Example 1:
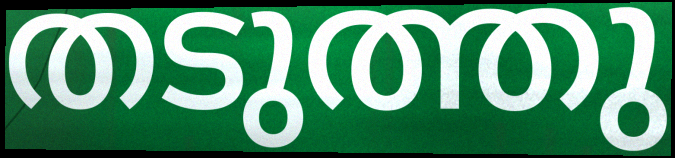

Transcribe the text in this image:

തടുത്തു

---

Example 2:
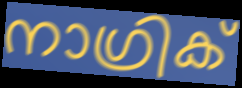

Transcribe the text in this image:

നാഗ്രിക്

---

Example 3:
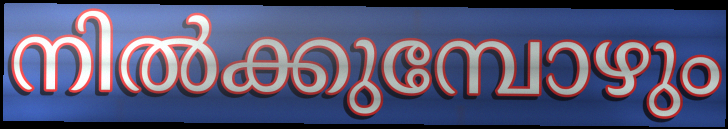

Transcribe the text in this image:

നിൽക്കുമ്പോഴും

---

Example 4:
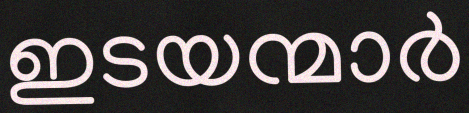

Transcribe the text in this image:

ഇടയന്മാർ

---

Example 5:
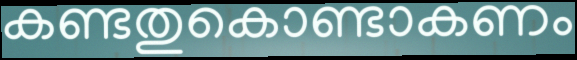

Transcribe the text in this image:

കണ്ടതുകൊണ്ടാകണം